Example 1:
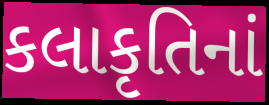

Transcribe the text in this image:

કલાકૃતિનાં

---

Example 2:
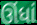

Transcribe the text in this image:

ઊંધાં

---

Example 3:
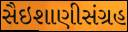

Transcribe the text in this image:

સૈઇશાણીસંગ્રહ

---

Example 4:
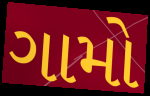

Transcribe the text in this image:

ગામો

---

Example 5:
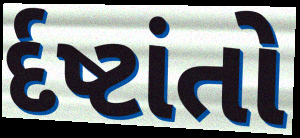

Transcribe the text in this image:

ર્દષ્ટાંતો